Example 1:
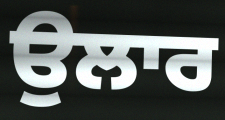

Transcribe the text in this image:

ਉਲਾਰ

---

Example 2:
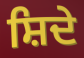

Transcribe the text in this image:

ਸ਼ਿਦੇ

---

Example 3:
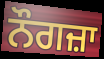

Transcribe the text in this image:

ਨੌਗਜ਼ਾ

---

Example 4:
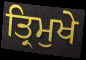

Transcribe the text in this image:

ਤ੍ਰਿਮੁਖੇ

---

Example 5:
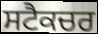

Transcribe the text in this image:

ਸਟੈਕਚਰ